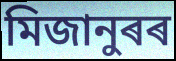
মিজানুৰৰ